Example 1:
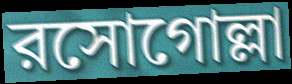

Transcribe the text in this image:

রসোগোল্লা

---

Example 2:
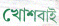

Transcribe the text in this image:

খোশবাই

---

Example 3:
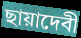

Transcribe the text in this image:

ছায়াদেবী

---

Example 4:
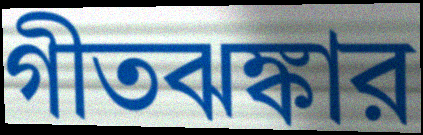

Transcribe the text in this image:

গীতঝঙ্কার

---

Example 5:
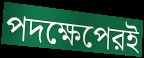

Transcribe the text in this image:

পদক্ষেপেরই